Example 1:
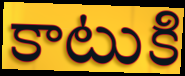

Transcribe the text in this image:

కాటుకి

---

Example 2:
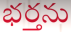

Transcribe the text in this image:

భర్తను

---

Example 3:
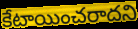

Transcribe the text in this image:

కేటాయించరాదని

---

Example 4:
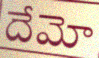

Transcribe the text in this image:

దేమో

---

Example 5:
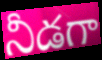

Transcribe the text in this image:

నీడగా